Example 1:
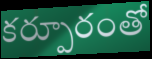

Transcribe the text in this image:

కర్పూరంతో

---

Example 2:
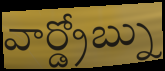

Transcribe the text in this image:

వార్డ్రోబ్ను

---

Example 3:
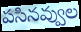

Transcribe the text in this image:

పసినవ్వుల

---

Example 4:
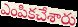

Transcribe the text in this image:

ఎంపికచేశారు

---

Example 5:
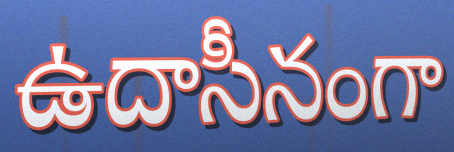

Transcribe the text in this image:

ఉదాసీనంగా